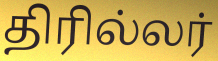
திரில்லர்